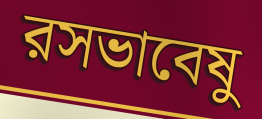
রসভাবেষু